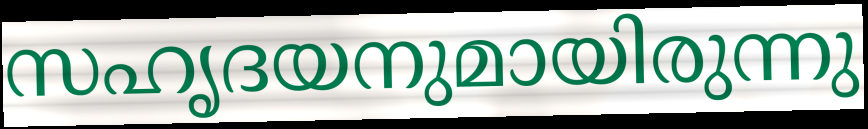
സഹൃദയനുമായിരുന്നു